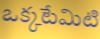
ఒక్కటేమిటి